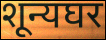
शून्यघर